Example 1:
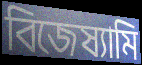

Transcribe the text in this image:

বিজেষ্যামি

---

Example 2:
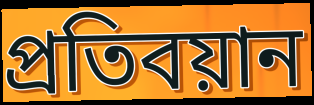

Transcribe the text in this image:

প্রতিবয়ান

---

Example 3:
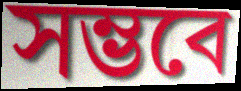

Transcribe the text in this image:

সম্ভবে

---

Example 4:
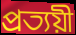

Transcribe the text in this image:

প্রত্যয়ী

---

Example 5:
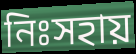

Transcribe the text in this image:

নিঃসহায়